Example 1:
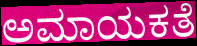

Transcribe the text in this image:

ಅಮಾಯಕತೆ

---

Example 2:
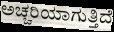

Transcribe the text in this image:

ಅಚ್ಚರಿಯಾಗುತ್ತಿದೆ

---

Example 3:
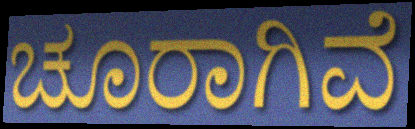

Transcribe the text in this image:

ಚೂರಾಗಿವೆ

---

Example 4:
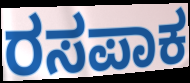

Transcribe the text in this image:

ರಸಪಾಕ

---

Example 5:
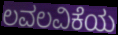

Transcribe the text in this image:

ಲವಲವಿಕೆಯ